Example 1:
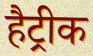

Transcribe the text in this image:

हैट्रीक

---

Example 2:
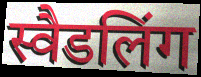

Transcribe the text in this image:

स्वैडलिंग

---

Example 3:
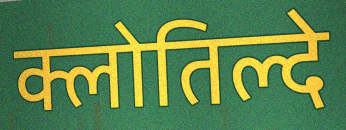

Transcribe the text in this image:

क्लोतिल्दे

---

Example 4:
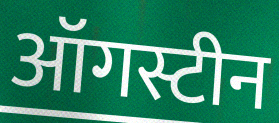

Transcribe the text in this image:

ऑगस्टीन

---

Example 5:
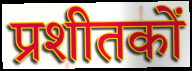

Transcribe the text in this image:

प्रशीतकों